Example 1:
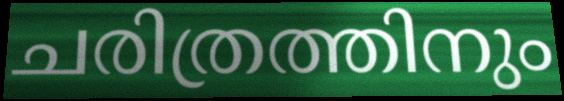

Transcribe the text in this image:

ചരിത്രത്തിനും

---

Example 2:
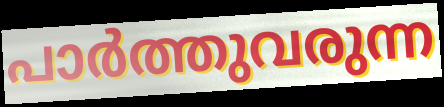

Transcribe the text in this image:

പാർത്തുവരുന്ന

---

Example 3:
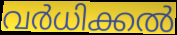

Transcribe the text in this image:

വർധിക്കൽ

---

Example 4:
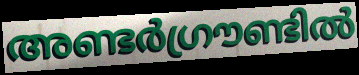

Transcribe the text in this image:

അണ്ടർഗ്രൗണ്ടിൽ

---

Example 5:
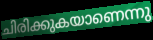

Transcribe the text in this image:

ചിരിക്കുകയാണെന്നു